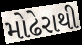
મોઢેરાથી